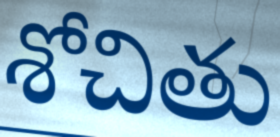
శోచితు